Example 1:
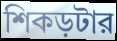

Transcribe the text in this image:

শিকড়টার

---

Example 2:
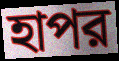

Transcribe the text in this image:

হাপর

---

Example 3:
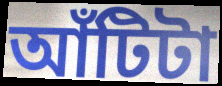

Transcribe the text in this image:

আঁটিটা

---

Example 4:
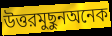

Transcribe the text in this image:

উত্তরমুছুনঅনেক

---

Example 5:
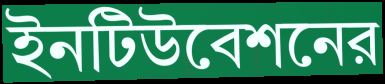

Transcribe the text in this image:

ইনটিউবেশনের